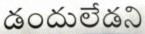
డందులేడని